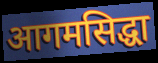
आगमसिद्धा